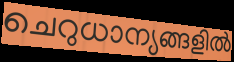
ചെറുധാന്യങ്ങളിൽ